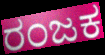
ರಂಜಕ